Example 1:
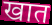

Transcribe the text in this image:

खात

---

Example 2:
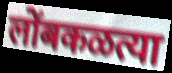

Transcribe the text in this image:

लोंबकळत्या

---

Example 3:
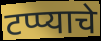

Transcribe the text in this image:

टप्प्याचे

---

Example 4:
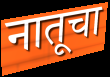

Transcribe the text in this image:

नातूचा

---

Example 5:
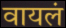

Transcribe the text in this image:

वायलं